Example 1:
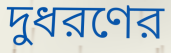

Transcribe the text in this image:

দুধরণের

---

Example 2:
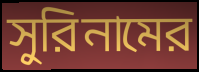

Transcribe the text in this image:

সুরিনামের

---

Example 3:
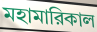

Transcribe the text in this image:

মহামারিকাল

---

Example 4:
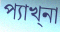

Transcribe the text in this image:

প্যাখ্না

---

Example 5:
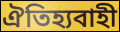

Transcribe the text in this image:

ঐতিহ্যবাহী